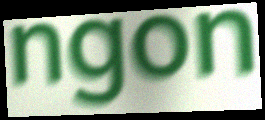
ngon